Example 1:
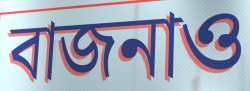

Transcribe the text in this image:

বাজনাও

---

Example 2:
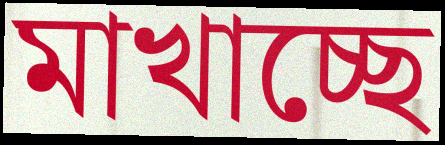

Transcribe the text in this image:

মাখাচ্ছে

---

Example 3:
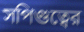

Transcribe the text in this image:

সপিণ্ডত্বের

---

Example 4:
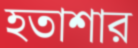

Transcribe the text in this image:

হতাশার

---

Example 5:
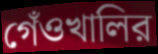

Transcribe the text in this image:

গেঁওখালির